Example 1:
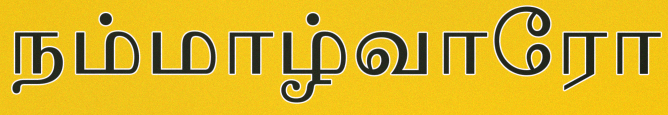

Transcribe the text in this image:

நம்மாழ்வாரோ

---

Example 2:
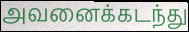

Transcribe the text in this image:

அவனைக்கடந்து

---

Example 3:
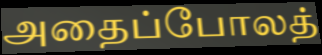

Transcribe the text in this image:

அதைப்போலத்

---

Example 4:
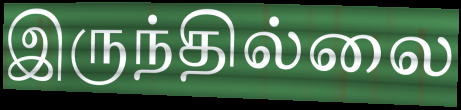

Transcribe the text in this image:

இருந்தில்லை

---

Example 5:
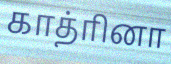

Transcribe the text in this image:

காத்ரினா